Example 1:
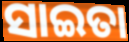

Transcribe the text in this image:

ସାଇତା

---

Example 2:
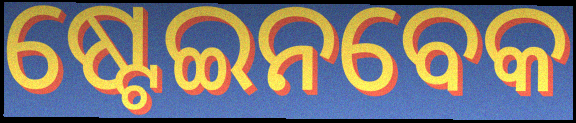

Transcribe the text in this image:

ଷ୍ଟେଇନବେକ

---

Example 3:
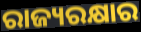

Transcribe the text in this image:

ରାଜ୍ୟରକ୍ଷାର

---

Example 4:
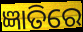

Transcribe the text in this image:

ଜ୍ଞାତିରେ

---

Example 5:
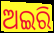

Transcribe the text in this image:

ଅଇରି